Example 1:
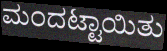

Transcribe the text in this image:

ಮಂದಟ್ಟಾಯಿತು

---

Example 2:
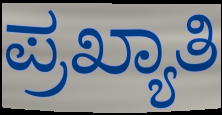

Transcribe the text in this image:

ಪ್ರಖ್ಯಾತಿ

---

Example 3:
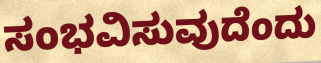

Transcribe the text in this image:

ಸಂಭವಿಸುವುದೆಂದು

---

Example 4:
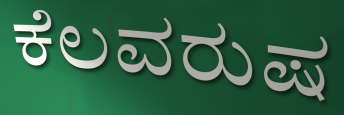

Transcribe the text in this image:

ಕೆಲವರುಷ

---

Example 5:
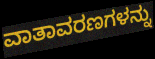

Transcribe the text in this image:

ವಾತಾವರಣಗಳನ್ನು